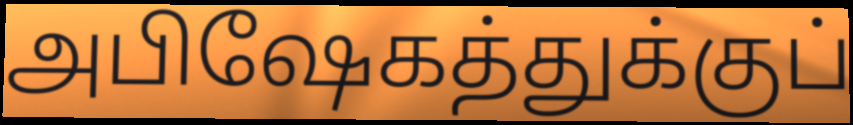
அபிஷேகத்துக்குப்